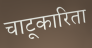
चाटूकारिता